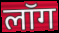
लॉग